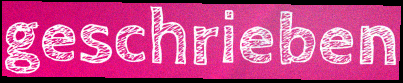
geschrieben